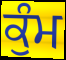
ਕੁੰਮ